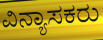
ವಿನ್ಯಾಸಕರು